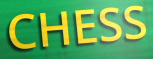
CHESS